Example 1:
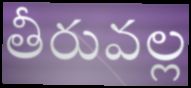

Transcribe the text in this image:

తీరువల్ల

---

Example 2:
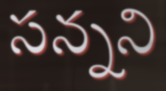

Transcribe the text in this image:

సన్నని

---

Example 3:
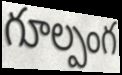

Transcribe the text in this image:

గూల్పంగ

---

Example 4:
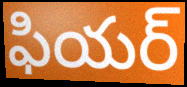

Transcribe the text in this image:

ఫియర్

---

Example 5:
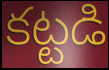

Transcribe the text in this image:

కట్టడి